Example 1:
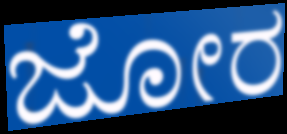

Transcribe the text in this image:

ಜೋರ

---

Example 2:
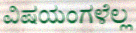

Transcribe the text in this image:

ವಿಷಯಂಗಳೆಲ್ಲ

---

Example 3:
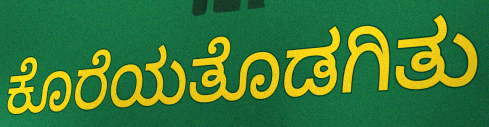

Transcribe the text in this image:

ಕೊರೆಯತೊಡಗಿತು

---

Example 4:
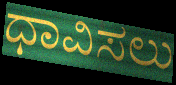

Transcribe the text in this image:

ಧಾವಿಸಲು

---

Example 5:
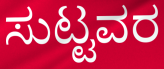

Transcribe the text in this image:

ಸುಟ್ಟವರ